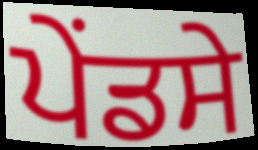
ਪੇਂਡਸੇ